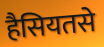
हैसियतसे